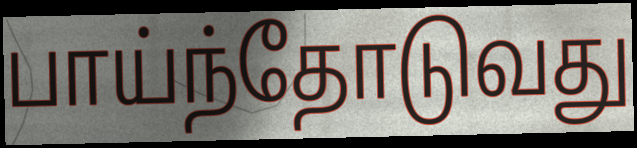
பாய்ந்தோடுவது